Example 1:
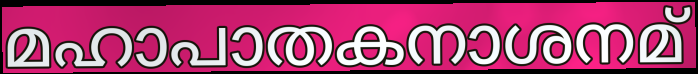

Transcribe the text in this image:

മഹാപാതകനാശനമ്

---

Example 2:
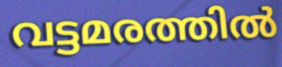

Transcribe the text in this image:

വട്ടമരത്തിൽ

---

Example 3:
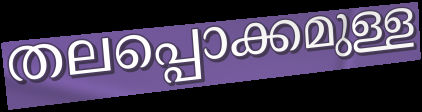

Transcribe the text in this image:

തലപ്പൊക്കമുള്ള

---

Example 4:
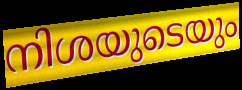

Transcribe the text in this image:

നിശയുടെയും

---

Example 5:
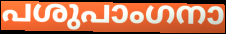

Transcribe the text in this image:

പശുപാംഗനാ